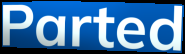
Parted